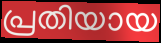
പ്രതിയായ